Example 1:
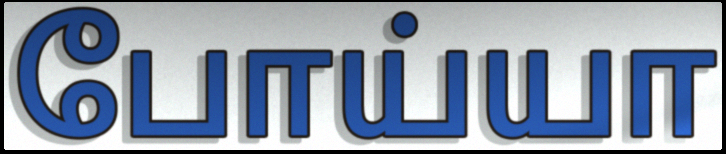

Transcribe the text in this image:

போய்யா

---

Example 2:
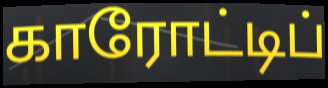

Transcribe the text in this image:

காரோட்டிப்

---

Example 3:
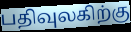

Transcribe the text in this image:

பதிவுலகிற்கு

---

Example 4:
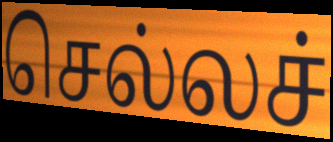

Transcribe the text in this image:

செல்லச்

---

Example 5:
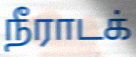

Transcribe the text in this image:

நீராடக்